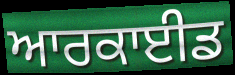
ਆਰਕਾਈਡ